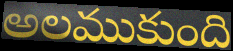
అలముకుంది